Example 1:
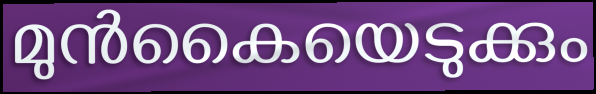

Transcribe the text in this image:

മുൻകൈയെടുക്കും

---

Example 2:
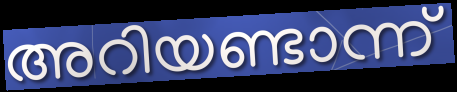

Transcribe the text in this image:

അറിയണ്ടാന്ന്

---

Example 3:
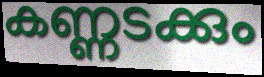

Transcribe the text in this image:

കണ്ണടക്കും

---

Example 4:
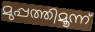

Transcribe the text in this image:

മുപ്പത്തിമൂന്ന്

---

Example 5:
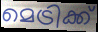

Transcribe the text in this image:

മെട്രിക്ക്